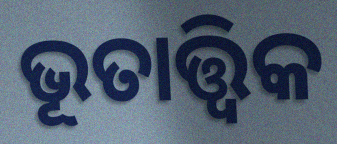
ଭୂତାତ୍ତ୍ୱିକ